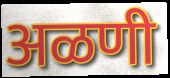
अळणी